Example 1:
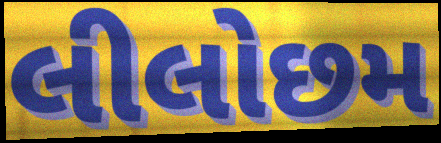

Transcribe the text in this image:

લીલોછમ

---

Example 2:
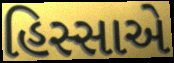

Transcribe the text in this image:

હિસ્સાએ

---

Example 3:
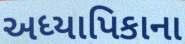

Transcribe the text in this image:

અધ્યાપિકાના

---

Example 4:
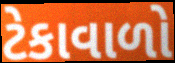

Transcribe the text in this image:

ટેકાવાળો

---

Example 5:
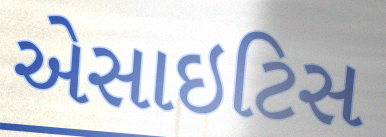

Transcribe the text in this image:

એસાઇટિસ